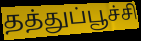
தத்துப்பூச்சி